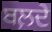
ਬਲ਼ਦੇ